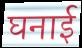
घनाई